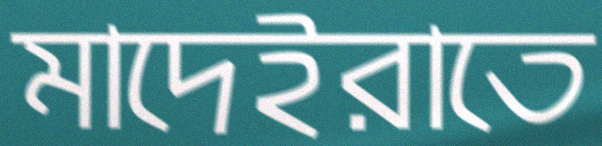
মাদেইরাতে